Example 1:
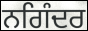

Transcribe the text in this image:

ਨਗਿੰਦਰ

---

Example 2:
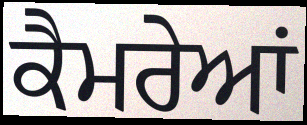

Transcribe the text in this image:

ਕੈਮਰੇਆਂ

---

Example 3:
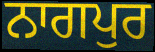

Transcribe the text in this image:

ਨਾਗਪੁਰ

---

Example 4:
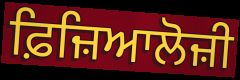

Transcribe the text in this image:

ਫ਼ਿਜ਼ਿਆਲੋਜ਼ੀ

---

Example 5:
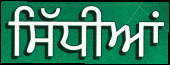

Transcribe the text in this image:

ਸਿੱਧੀਆਂ